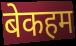
बेकहम